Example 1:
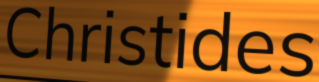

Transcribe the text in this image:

Christides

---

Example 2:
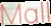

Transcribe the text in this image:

Mall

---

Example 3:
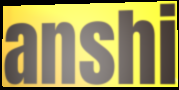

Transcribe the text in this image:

anshi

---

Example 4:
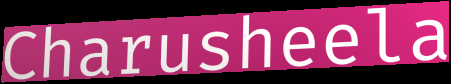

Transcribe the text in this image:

Charusheela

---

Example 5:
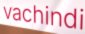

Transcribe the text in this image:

vachindi